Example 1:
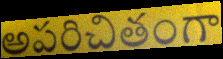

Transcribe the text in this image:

అపరిచితంగా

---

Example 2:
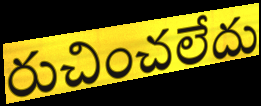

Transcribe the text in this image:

రుచించలేదు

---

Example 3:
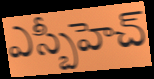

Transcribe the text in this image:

ఎస్బీహెచ్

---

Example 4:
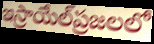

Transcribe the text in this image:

ఇస్రాయేల్‌ప్రజలలో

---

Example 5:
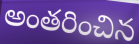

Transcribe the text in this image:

అంతరించిన